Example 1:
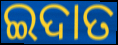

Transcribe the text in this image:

ଇଦାତ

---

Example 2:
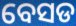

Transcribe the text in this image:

ବେସଡ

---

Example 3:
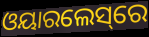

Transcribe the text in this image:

ଓୟାରଲେସ୍‌ରେ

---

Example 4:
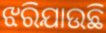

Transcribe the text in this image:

ଝରିଯାଉଛି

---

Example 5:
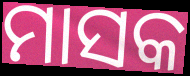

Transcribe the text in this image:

ମାସକ